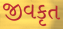
જીવકૃત